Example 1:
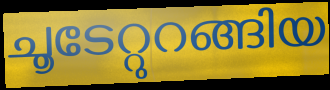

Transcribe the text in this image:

ചൂടേറ്റുറങ്ങിയ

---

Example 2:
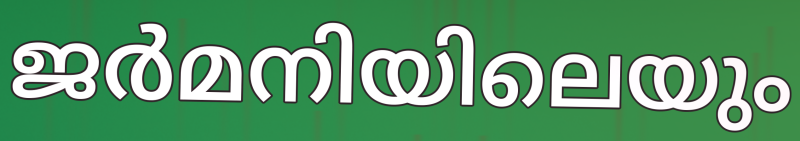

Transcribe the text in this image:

ജർമനിയിലെയും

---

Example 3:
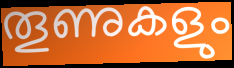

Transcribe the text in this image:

തൂണുകളും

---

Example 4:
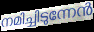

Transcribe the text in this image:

നമിച്ചിടുന്നേൻ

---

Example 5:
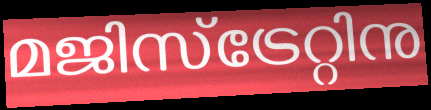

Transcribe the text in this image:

മജിസ്ട്രേറ്റിനു